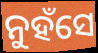
ନୁହଁସେ